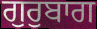
ਗੁਰੁਬਾਗ